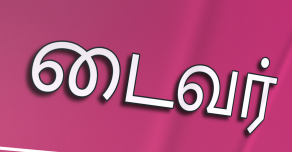
டைவர்